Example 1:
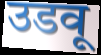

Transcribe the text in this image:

उडवू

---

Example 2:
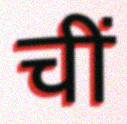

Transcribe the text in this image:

चीं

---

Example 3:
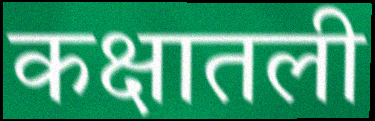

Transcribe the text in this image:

कक्षातली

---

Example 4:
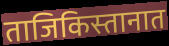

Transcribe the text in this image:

ताजिकिस्तानात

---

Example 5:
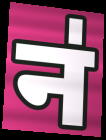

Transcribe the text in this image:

न॑